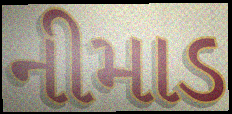
નીમાડ